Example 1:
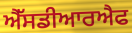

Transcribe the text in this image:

ਐੱਸਡੀਆਰਐਫ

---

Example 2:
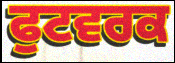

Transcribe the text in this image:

ਫੁਟਵਰਕ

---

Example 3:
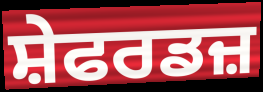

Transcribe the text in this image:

ਸ਼ੇਫਰਡਜ਼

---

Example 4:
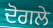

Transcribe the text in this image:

ਦੋਗਲੇ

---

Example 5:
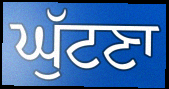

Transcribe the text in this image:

ਘੁੱਟਣਾ